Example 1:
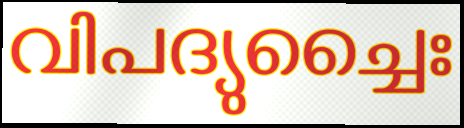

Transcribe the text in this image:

വിപദ്യുച്ചൈഃ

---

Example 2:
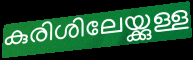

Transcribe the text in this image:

കുരിശിലേയ്ക്കുള്ള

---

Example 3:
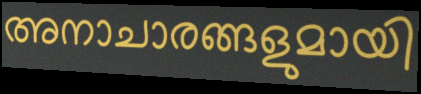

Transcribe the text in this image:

അനാചാരങ്ങളുമായി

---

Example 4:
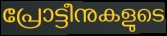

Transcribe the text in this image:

പ്രോട്ടീനുകളുടെ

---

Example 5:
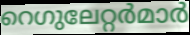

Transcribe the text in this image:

റെഗുലേറ്റർമാർ